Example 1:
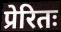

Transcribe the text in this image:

प्रेरितः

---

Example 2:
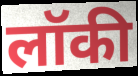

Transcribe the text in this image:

लॉकी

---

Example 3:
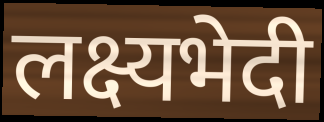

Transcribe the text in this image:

लक्ष्यभेदी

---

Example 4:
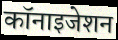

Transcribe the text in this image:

कॉनाइजेशन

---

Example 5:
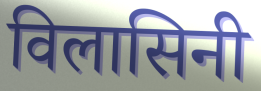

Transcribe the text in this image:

विलासिनी